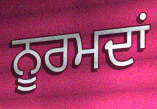
ਨੂਰਮਦਾਂ